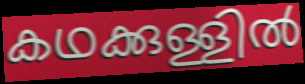
കഥക്കുള്ളിൽ